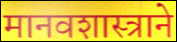
मानवशास्त्राने